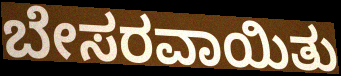
ಬೇಸರವಾಯಿತು